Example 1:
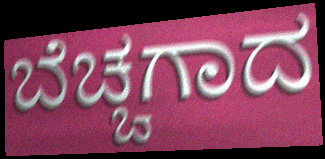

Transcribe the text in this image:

ಬೆಚ್ಚಗಾದ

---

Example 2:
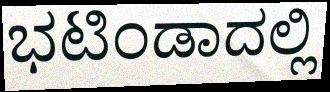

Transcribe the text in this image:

ಭಟಿಂಡಾದಲ್ಲಿ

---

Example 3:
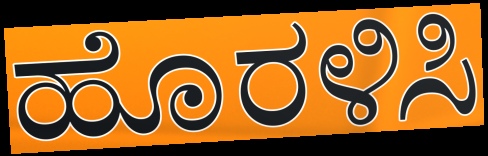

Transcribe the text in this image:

ಹೊರಳಿಸಿ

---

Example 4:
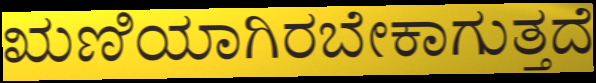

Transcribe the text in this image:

ಋಣಿಯಾಗಿರಬೇಕಾಗುತ್ತದೆ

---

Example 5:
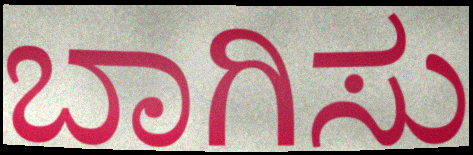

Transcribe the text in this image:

ಬಾಗಿಸು